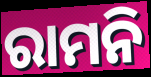
ରାମନି